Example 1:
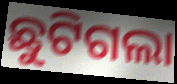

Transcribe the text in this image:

ଛୁଟିଗଲା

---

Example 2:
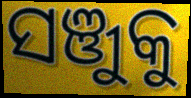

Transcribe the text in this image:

ସଞ୍ଜୁକୁ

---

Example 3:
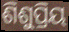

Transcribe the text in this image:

ଶିଶୁପ୍ରିୟ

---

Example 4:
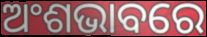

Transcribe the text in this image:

ଅଂଶଭାବରେ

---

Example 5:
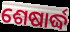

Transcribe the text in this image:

ଶେଷାର୍ଦ୍ଧ